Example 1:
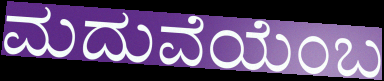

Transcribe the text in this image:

ಮದುವೆಯೆಂಬ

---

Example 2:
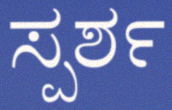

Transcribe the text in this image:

ಸ್ಪರ್ಶ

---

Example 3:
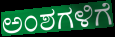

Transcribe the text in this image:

ಅಂಶಗಳಿಗೆ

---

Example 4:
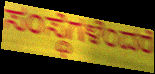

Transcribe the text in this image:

ಸಂಸ್ಥೆಗಳೆಂದರೆ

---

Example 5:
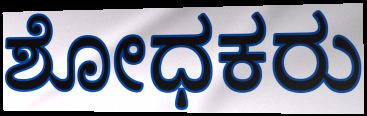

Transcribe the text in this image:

ಶೋಧಕರು